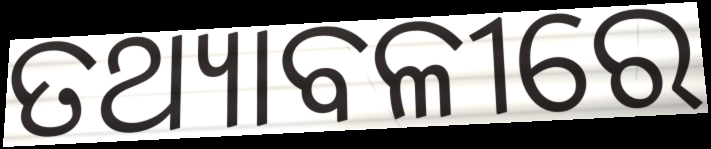
ତଥ୍ୟାବଳୀରେ